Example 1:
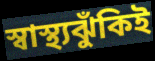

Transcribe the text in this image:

স্বাস্থ্যঝুঁকিই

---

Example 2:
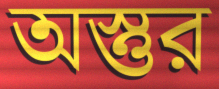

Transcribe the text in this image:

অস্তুর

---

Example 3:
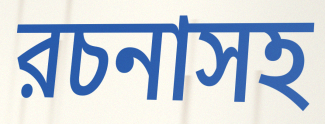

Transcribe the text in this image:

রচনাসহ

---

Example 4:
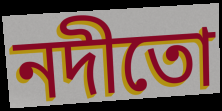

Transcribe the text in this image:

নদীতো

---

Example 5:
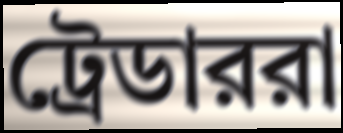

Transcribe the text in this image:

ট্রেডাররা